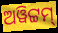
ଅୱିଟ୍ଟମ୍